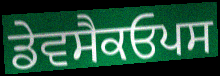
ਡੇਵਸੈਕਓਪਸ